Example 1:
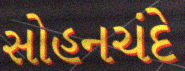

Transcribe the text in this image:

સોહનચંદે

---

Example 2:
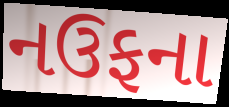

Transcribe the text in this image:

નઉફના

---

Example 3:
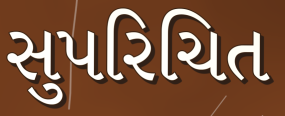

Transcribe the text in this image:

સુપરિચિત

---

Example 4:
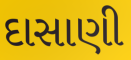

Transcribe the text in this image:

દાસાણી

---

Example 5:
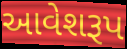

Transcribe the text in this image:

આવેશરૂપ